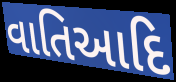
વાતિઆદિ